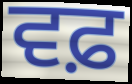
ਵਫ਼